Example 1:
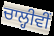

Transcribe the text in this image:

ਚਾਲ੍ਹੀਵੀਂ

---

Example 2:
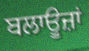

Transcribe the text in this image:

ਬਲਾਊਜ਼ਾਂ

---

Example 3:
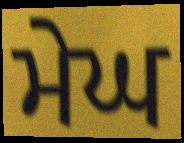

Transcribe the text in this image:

ਮੇਘ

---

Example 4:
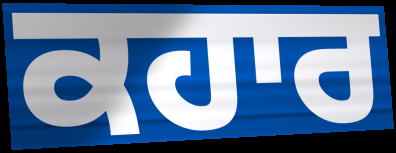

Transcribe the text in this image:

ਕਹਾਰ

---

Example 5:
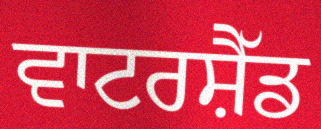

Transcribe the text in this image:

ਵਾਟਰਸ਼ੈੱਡ